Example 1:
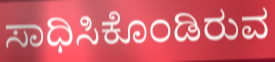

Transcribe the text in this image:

ಸಾಧಿಸಿಕೊಂಡಿರುವ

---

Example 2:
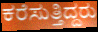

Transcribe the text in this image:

ಕರೆಸುತ್ತಿದ್ದರು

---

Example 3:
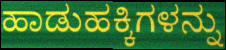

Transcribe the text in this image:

ಹಾಡುಹಕ್ಕಿಗಳನ್ನು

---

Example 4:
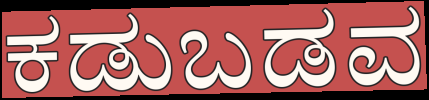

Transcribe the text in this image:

ಕಡುಬಡವ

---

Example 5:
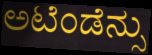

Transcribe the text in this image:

ಅಟೆಂಡೆನ್ಸು